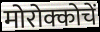
मोरोक्कोचें